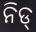
ନିଡ୍